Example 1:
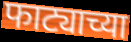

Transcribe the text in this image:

फाट्याच्या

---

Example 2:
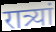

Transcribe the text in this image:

रात्र्यां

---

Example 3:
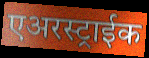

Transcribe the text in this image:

एअरस्ट्राईक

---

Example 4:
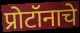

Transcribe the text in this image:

प्रोटॉनाचे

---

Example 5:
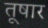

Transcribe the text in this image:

तूषार